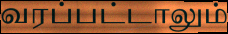
வரப்பட்டாலும்